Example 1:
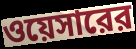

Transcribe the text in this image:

ওয়েসারের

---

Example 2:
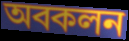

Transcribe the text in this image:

অবকলন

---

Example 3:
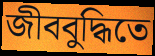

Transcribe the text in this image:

জীববুদ্ধিতে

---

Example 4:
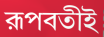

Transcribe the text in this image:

রূপবতীই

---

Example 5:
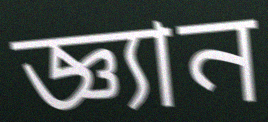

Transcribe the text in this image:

জ্ঞ্যান